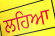
ਲਹਿਆ